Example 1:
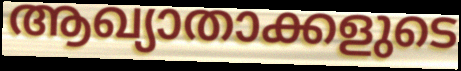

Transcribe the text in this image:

ആഖ്യാതാക്കളുടെ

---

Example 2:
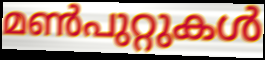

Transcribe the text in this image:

മൺപുറ്റുകൾ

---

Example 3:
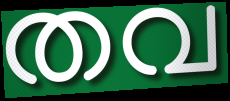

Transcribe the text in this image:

തവ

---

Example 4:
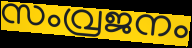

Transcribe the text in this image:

സംവ്രജനം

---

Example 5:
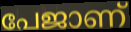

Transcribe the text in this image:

പേജാണ്